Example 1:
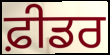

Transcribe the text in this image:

ਫ਼ੀਡਰ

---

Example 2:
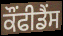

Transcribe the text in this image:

ਕੌਂਫੀਡੈਂਸ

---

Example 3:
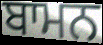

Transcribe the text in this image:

ਬਾਮਨ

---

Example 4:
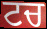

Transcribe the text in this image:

ਟਚ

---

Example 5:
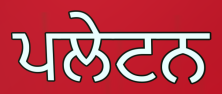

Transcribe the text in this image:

ਪਲੇਟਨ